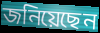
জনিয়েছেন